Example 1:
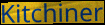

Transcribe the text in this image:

Kitchiner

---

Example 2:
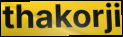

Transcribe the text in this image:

thakorji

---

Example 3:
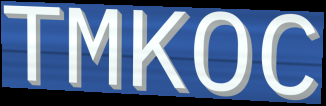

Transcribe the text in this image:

TMKOC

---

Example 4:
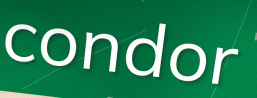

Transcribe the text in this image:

condor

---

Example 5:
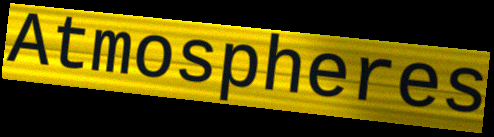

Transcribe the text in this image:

Atmospheres